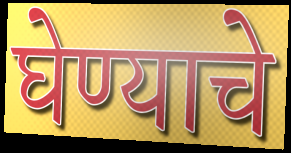
घेण्याचे